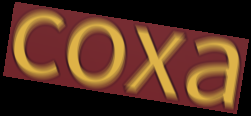
coxa